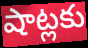
షాట్లకు